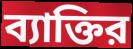
ব্যাক্তির